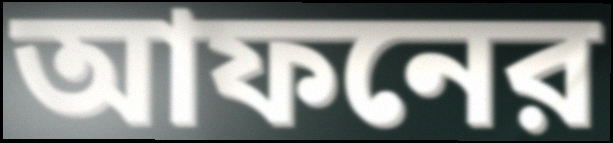
আফনের